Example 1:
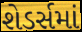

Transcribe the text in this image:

શેડર્સમાં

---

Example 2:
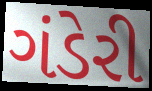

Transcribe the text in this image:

ગંડેરી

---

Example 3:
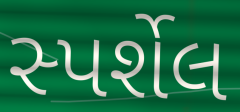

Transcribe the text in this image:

સ્પર્શેલ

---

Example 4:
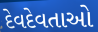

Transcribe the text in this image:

દેવદેવતાઓ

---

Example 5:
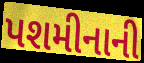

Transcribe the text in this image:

પશમીનાની